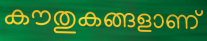
കൗതുകങ്ങളാണ്